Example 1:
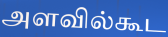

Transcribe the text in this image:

அளவில்கூட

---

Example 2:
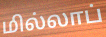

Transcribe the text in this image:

மில்லாப்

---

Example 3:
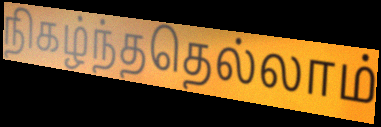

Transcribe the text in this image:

நிகழ்ந்ததெல்லாம்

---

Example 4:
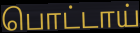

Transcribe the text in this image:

பொட்டாய்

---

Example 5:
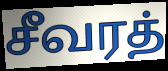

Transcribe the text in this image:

சீவரத்